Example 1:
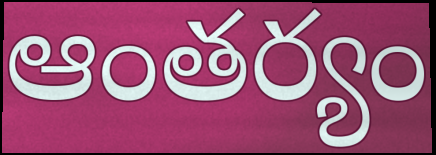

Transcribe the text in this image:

ఆంతర్యం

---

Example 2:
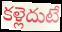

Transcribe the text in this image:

కళ్లెదుటే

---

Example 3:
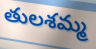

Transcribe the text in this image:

తులశమ్మ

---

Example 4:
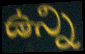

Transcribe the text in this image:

ఉన్ని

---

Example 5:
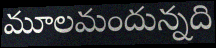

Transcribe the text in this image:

మూలమందున్నది